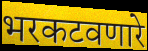
भरकटवणारे